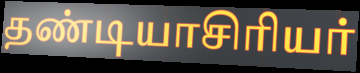
தண்டியாசிரியர்